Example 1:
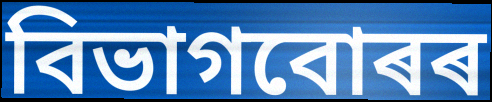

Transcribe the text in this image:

বিভাগবোৰৰ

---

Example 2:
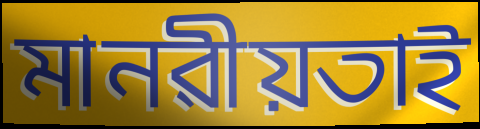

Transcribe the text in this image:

মানৱীয়তাই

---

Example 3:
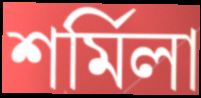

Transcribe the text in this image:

শৰ্মিলা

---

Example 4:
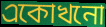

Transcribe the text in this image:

একোখনো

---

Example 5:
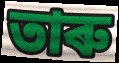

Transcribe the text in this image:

তাৰু